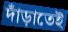
দাঁড়াতেই